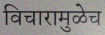
विचारामुळेच